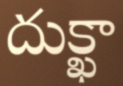
దుక్ఖా